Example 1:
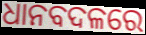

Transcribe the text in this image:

ଧାନବଦଳରେ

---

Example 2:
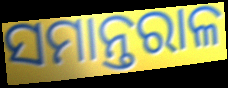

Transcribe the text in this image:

ସମାନ୍ତରାଳ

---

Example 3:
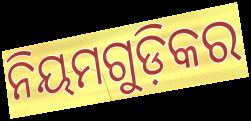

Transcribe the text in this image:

ନିୟମଗୁଡ଼ିକର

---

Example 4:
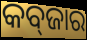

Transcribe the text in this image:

କବ୍‌ଜାର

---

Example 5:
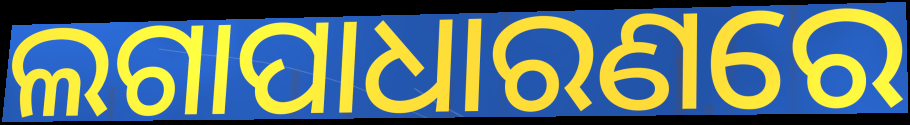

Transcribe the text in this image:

ଲଗାପାଧାରଣରେ